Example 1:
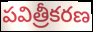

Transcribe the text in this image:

పవిత్రీకరణ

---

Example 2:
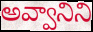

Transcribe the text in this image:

అవ్వానిని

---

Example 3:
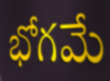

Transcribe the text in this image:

భోగమే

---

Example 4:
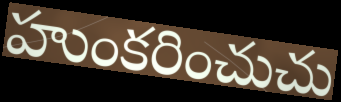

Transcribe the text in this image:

హుంకరించుచు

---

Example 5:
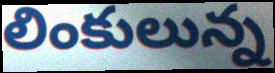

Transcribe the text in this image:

లింకులున్న